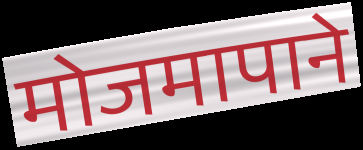
मोजमापाने